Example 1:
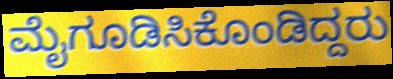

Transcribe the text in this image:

ಮೈಗೂಡಿಸಿಕೊಂಡಿದ್ದರು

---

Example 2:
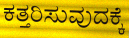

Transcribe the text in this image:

ಕತ್ತರಿಸುವುದಕ್ಕೆ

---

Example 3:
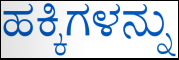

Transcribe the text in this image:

ಹಕ್ಕಿಗಳನ್ನು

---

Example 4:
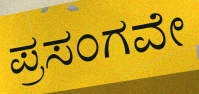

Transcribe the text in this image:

ಪ್ರಸಂಗವೇ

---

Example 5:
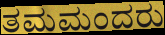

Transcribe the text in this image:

ತಮಮಂದರು